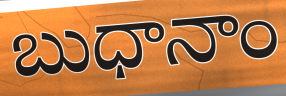
బుధానాం